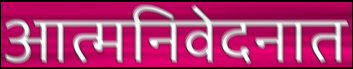
आत्मनिवेदनात